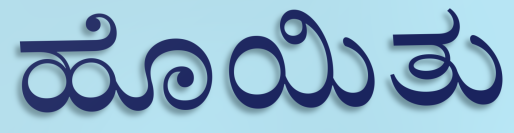
ಹೊಯಿತು